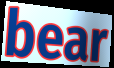
bear